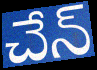
చేన్